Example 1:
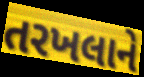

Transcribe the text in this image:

તરખલાને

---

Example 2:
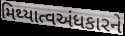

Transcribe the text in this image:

મિથ્યાત્વઅંધકારને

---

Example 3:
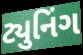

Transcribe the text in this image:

ટ્યુનિંગ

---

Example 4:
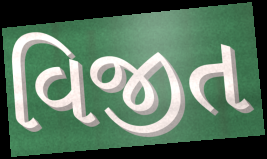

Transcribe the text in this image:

વિજીત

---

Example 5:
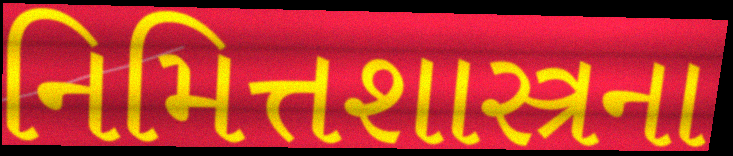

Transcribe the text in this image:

નિમિત્તશાસ્ત્રના